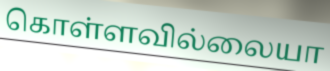
கொள்ளவில்லையா